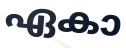
ഏകാ